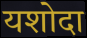
यशोदा